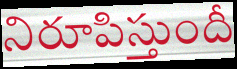
నిరూపిస్తుందీ